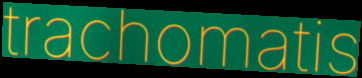
trachomatis